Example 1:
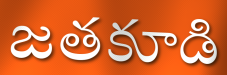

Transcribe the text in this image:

జతకూడి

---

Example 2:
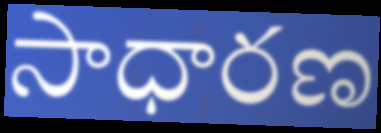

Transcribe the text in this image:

సాధారణ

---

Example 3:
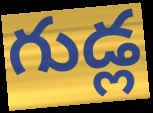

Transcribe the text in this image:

గుడ్ల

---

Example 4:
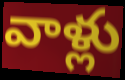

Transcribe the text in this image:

వాళ్లు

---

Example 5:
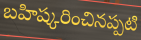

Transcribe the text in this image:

బహిష్కరించినప్పటి